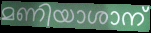
മണിയാശാന്